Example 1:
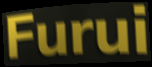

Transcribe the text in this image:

Furui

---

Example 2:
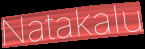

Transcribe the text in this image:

Natakalu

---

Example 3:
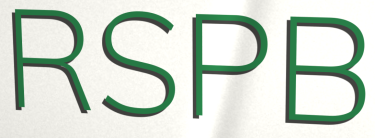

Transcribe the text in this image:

RSPB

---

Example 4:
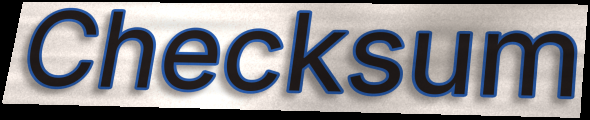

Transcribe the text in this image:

Checksum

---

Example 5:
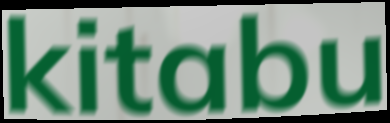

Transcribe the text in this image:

kitabu